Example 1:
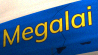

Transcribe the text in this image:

Megalai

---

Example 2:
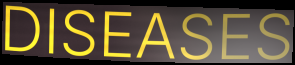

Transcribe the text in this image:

DISEASES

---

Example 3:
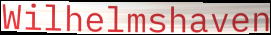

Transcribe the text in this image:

Wilhelmshaven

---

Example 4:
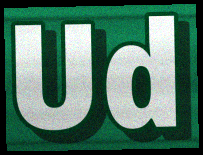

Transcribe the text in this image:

Ud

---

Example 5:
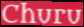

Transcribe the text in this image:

Churu